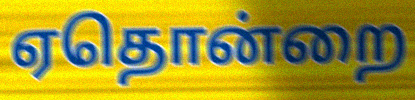
ஏதொன்றை